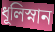
ধূলিস্নান